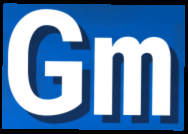
Gm